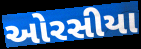
ઓરસીયા